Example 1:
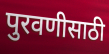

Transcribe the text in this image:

पुरवणीसाठी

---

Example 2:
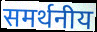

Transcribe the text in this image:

समर्थनीय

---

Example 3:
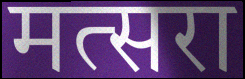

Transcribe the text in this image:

मत्सरा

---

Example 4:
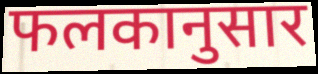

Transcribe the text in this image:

फलकानुसार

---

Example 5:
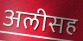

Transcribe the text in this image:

अलीसह